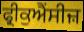
ਫ੍ਰੀਕੁਐਂਸੀਜ਼